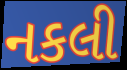
નકલી